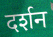
दर्शन